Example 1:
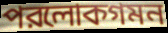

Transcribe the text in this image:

পরলোকগমন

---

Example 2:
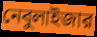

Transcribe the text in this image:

নেবুলাইজার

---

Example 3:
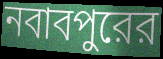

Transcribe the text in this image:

নবাবপুরের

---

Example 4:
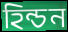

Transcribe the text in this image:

হিন্ডন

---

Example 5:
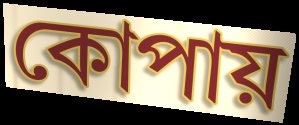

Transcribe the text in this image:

কোপায়